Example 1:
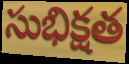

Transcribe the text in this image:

సుభిక్షత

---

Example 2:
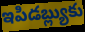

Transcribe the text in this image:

ఇపిడబ్ల్యుకు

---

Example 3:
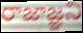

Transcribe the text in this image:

రాజాజ్ఞని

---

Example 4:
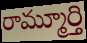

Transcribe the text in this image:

రామ్మూర్తి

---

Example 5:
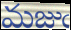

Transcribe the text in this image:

మజుఁ